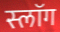
स्लॉग